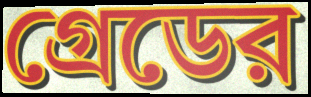
গ্রেডের